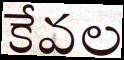
కేవల